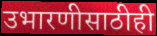
उभारणीसाठीही